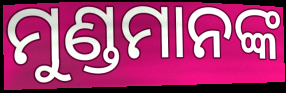
ମୁଣ୍ଡମାନଙ୍କ